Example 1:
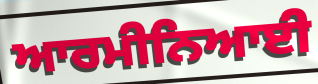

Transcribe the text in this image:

ਆਰਮੀਨਿਆਈ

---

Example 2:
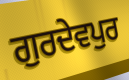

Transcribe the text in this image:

ਗੁਰਦੇਵਪੁਰ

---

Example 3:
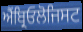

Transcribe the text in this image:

ਐਂਬ੍ਰਿਓਲੋਜਿਸਟ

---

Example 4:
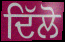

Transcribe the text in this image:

ਦਿੱਲੋ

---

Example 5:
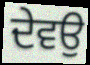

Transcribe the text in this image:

ਦੇਵਉ